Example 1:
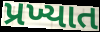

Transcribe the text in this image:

પ્રખ્યાત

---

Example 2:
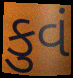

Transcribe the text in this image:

કુવં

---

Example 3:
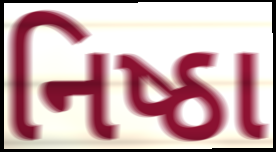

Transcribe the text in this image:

નિષ્ઠા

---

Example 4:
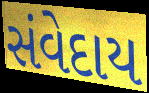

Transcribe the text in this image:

સંવેદાય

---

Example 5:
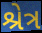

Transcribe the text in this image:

શ્રેત્ર